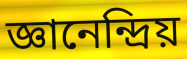
জ্ঞানেন্দ্ৰিয়